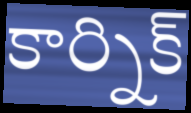
కార్నిక్